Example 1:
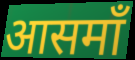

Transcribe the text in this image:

आसमाँ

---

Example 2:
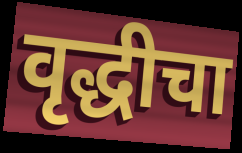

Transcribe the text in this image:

वृद्धीचा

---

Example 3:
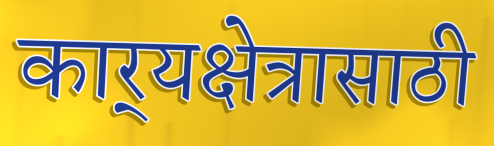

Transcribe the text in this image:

कार्यक्षेत्रासाठी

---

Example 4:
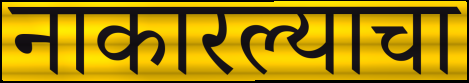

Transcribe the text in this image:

नाकारल्याचा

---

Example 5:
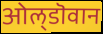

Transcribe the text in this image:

ओल्डॊवान